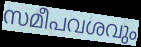
സമീപവശവും